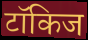
टॉकिज